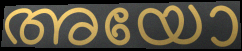
അയോ